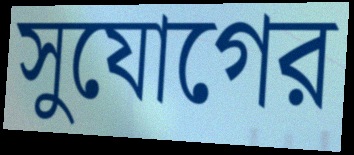
সুযোগের